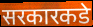
सरकारकडे